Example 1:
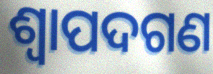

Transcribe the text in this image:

ଶ୍ୱାପଦଗଣ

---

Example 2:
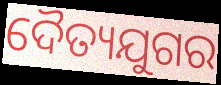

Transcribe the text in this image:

ଦୈତ୍ୟଯୁଗର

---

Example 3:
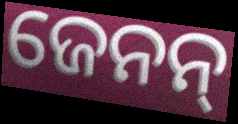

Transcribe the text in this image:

ଜେନନ୍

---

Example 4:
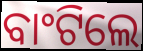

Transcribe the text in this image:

ବାଂଟିଲେ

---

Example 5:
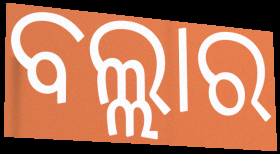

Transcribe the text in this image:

ବଲ୍ଲାର